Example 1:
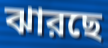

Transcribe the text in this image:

ঝারছে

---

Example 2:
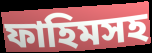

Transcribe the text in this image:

ফাহিমসহ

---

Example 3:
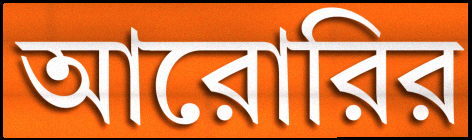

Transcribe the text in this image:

আরোরির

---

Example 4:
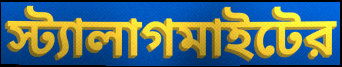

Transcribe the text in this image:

স্ট্যালাগমাইটের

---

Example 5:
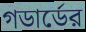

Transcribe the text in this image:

গডার্ডের